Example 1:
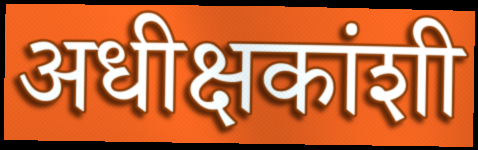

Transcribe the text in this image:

अधीक्षकांशी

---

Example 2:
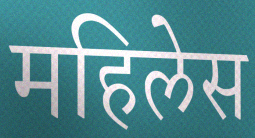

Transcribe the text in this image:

महिलेस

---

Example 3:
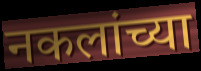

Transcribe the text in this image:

नकलांच्या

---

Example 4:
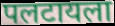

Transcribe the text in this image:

पलटायला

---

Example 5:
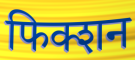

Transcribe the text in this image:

फिक्शन